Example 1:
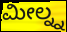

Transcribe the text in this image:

ಮೀಲ್ನ್ನ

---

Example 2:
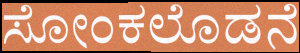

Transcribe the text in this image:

ಸೋಂಕಲೊಡನೆ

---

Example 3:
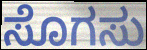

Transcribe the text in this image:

ಸೊಗಸು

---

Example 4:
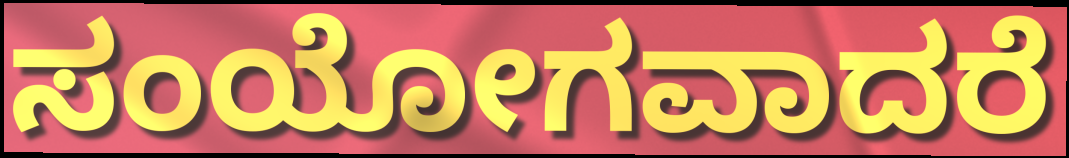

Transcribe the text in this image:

ಸಂಯೋಗವಾದರೆ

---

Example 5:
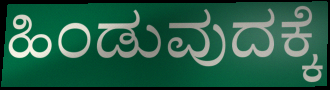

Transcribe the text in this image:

ಹಿಂಡುವುದಕ್ಕೆ